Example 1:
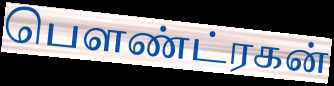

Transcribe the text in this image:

பௌண்ட்ரகன்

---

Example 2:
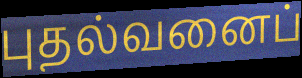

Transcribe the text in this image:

புதல்வனைப்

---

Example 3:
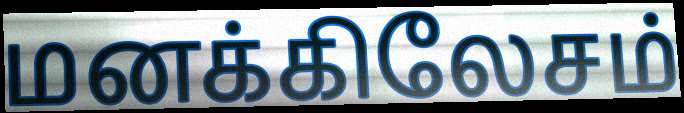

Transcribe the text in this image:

மனக்கிலேசம்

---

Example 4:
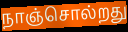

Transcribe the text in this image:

நாஞ்சொல்றது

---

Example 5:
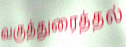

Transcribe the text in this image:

வகுத்துரைத்தல்